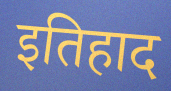
इतिहाद